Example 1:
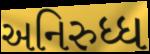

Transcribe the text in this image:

અનિરુધ્ધ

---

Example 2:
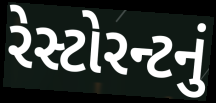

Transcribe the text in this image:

રેસ્ટોરન્ટનું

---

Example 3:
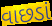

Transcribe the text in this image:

વાછડાં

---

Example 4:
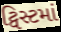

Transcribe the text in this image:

ટ્વિસ્ટમાં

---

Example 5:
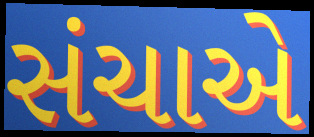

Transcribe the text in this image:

સંચાએ